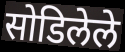
सोडिलेले